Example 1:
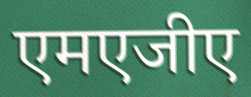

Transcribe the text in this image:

एमएजीए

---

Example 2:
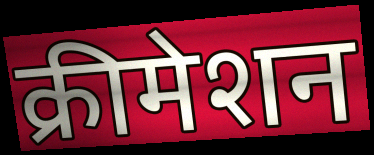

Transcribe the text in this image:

क्रीमेशन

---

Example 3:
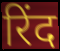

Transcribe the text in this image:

रिंद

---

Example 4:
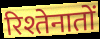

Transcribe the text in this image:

रिश्तेनातों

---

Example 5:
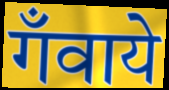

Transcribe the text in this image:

गँवाये